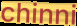
chinni